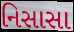
નિસાસા